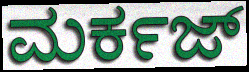
ಮರ್ಕಜ್